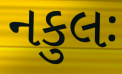
નકુલઃ